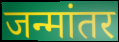
जन्मांतर